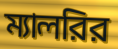
ম্যালরির